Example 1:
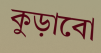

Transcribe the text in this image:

কুড়াবো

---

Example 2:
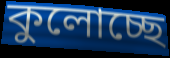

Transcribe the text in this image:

কুলোচ্ছে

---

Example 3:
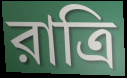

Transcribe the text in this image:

রাত্রি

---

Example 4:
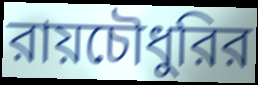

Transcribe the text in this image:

রায়চৌধুরির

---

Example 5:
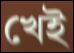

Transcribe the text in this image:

খেই